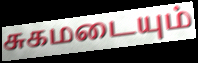
சுகமடையும்